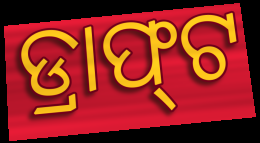
ଡ୍ରାଫ୍‌ଟ